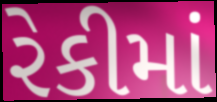
રેકીમાં